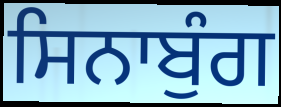
ਸਿਨਾਬੁੰਗ